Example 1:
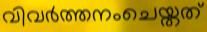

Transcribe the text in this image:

വിവർത്തനംചെയ്തത്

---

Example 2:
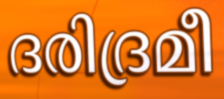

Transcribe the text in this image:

ദരിദ്രമീ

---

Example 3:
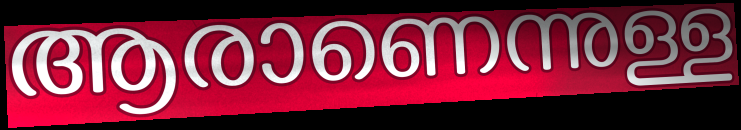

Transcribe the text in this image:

ആരാണെന്നുള്ള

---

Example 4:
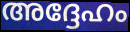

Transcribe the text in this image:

അദ്ദേഹം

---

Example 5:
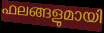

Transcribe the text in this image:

ഫലങ്ങളുമായി